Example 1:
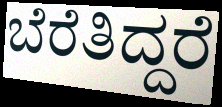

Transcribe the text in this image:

ಬೆರೆತಿದ್ದರೆ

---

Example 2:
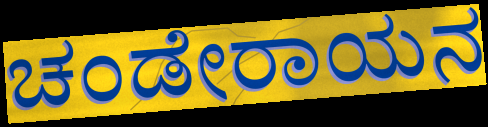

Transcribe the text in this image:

ಚಂಡೇರಾಯನ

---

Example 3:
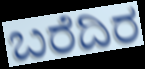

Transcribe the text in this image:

ಬರೆದಿರ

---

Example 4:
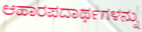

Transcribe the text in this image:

ಆಹಾರಪದಾರ್ಥಗಳನ್ನು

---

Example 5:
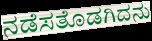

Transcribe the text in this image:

ನಡೆಸತೊಡಗಿದನು